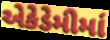
એકેડેમીમાં